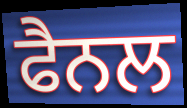
ਫੈਨਲ